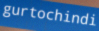
gurtochindi